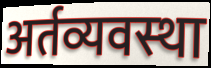
अर्तव्यवस्था